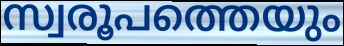
സ്വരൂപത്തെയും